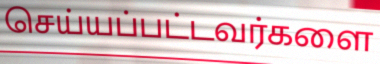
செய்யப்பட்டவர்களை